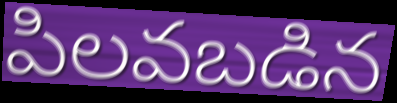
పిలవబడిన